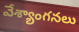
వేశ్యాంగనలు